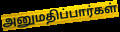
அனுமதிப்பார்கள்